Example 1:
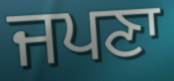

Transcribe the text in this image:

ਜਪਣਾ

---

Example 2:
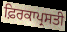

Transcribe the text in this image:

ਫ਼ਿਰਕਾਪ੍ਰਸਤੀ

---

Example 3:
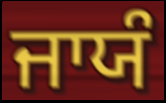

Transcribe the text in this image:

ਜਾਯੰ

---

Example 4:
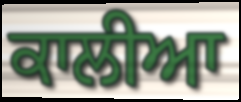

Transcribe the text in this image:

ਕਾਲੀਆ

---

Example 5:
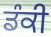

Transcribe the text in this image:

ਡੰਕੀ